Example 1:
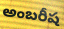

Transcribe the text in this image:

అంబరీష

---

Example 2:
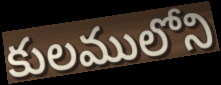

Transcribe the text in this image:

కులములోని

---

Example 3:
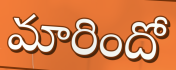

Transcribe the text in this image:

మారిందో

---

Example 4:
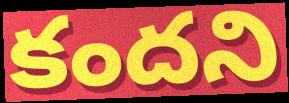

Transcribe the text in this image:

కందని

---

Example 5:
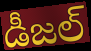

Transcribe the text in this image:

డీజల్